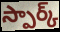
స్పార్క్